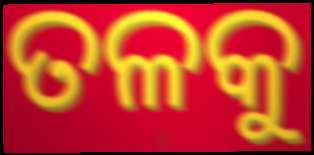
ତଳକୁ